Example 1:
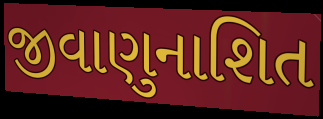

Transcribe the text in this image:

જીવાણુનાશિત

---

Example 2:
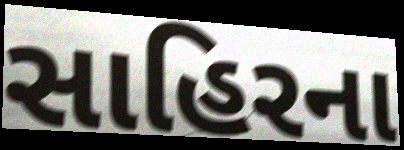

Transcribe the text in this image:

સાહિરના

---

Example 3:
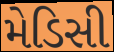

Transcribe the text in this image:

મેડિસી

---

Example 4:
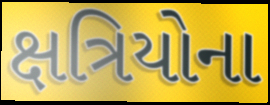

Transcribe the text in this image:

ક્ષત્રિયોના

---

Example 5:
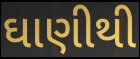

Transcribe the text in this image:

ઘાણીથી